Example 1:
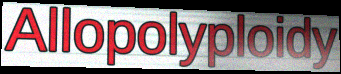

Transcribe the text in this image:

Allopolyploidy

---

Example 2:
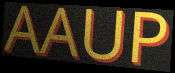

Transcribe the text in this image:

AAUP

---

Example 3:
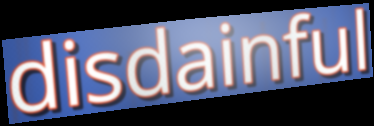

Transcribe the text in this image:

disdainful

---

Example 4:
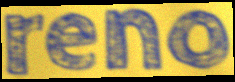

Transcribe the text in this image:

reno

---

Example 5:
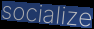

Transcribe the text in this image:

socialize